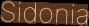
Sidonia